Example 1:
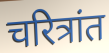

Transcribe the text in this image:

चरित्रांत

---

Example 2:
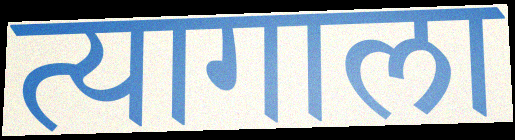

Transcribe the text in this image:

त्यागाला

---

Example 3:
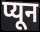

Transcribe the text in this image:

प्यून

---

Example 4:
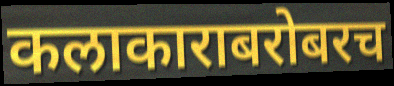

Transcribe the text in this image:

कलाकाराबरोबरच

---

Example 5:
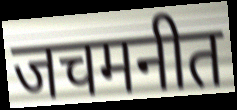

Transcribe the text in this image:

जचमनीत